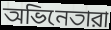
অভিনেতারা